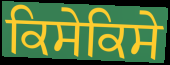
ਕਿਸੇਕਿਸੇ